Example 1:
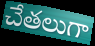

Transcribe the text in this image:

చేతలుగా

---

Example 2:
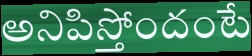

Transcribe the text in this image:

అనిపిస్తోందంటే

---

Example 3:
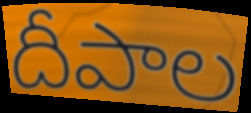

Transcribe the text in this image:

దీపాల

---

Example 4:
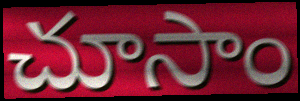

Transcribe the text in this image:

చూసాం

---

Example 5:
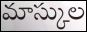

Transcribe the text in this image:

మాస్కుల